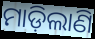
ମାଡ଼ିଲାଣି